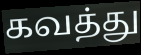
கவத்து